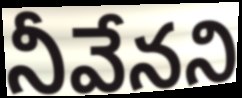
నీవేనని